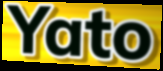
Yato